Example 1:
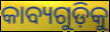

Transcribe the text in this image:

କାବ୍ୟଗୁଡ଼ିକୁ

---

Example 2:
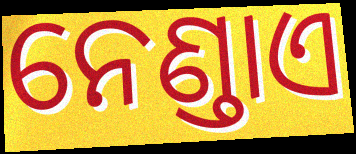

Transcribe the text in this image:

ନେଣ୍ଡାଏ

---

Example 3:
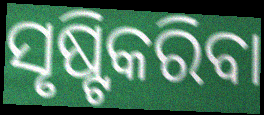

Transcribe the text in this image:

ସୃଷ୍ଟିକରିବା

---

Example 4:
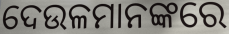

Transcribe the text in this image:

ଦେଉଳମାନଙ୍କରେ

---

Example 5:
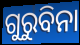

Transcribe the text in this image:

ଗୁରୁବିନା